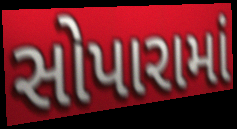
સોપારામાં